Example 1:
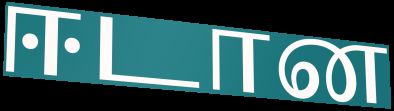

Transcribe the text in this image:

ஈடான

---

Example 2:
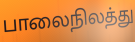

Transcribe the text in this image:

பாலைநிலத்து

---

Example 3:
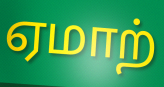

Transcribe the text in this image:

ஏமாற்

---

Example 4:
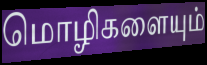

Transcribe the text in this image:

மொழிகளையும்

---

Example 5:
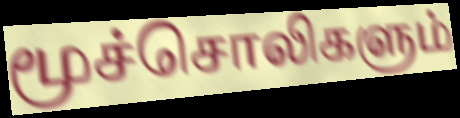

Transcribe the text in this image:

மூச்சொலிகளும்